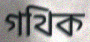
গথিক